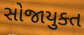
સોજાયુક્ત